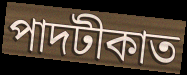
পাদটীকাত